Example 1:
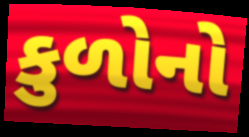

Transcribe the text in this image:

કુળોનો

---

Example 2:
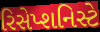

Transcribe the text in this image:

રિસેપ્શનિસ્ટે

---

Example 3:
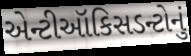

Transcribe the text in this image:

એન્ટીઑકિસડન્ટોનું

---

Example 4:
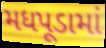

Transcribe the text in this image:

મધપૂડામાં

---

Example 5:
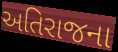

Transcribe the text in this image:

અતિરાજના